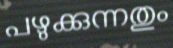
പഴുക്കുന്നതും